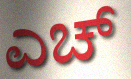
ಎಚ್